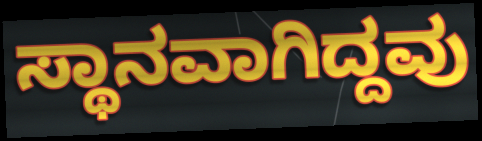
ಸ್ಥಾನವಾಗಿದ್ದವು